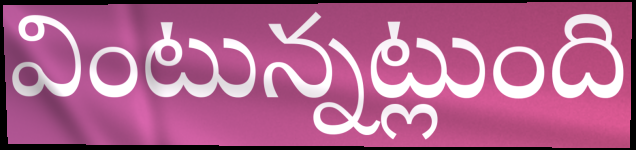
వింటున్నట్లుంది